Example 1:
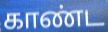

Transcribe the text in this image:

காண்ட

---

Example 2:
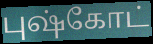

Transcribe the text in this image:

புஷ்கோட்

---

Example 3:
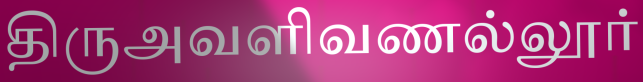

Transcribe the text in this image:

திருஅவளிவணல்லூர்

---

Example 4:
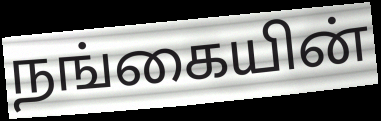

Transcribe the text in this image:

நங்கையின்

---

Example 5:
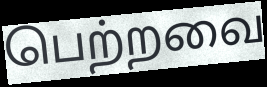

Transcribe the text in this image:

பெற்றவை